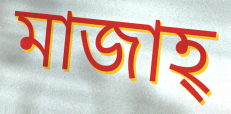
মাজাহ্